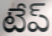
టేప్